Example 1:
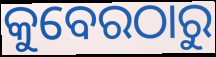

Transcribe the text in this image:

କୁବେରଠାରୁ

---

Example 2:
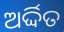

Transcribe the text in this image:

ଅର୍ଦ୍ଦିତ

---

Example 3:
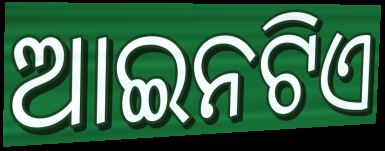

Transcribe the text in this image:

ଆଇନଟିଏ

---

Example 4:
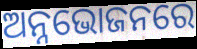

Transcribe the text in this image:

ଅନ୍ନଭୋଜନରେ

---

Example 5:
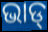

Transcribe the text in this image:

ଭାଡ୍